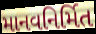
માનવનિર્મિત